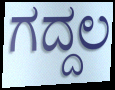
ಗದ್ದಲ